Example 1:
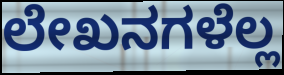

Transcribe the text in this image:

ಲೇಖನಗಳೆಲ್ಲ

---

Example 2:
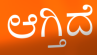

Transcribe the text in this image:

ಆಗ್ತಿದೆ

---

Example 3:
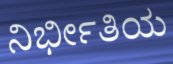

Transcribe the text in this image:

ನಿರ್ಭೀತಿಯ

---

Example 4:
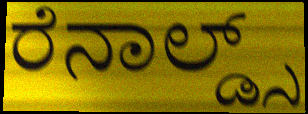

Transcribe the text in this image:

ರೆನಾಲ್ಡ್ಸ್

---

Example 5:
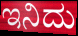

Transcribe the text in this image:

ಇನಿದು